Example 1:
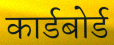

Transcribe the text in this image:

कार्डबोर्ड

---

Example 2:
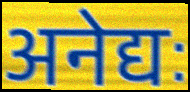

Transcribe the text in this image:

अनेद्यः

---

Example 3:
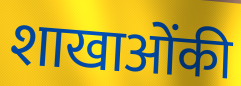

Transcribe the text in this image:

शाखाओंकी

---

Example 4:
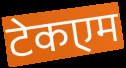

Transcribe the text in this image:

टेकएम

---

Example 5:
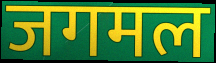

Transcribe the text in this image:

जगमल